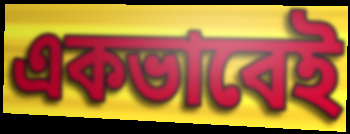
একভাবেই